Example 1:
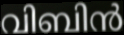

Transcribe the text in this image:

വിബിൻ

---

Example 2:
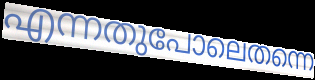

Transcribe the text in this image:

എന്നതുപോലെതന്നെ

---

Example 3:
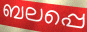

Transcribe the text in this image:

ബലപ്പെ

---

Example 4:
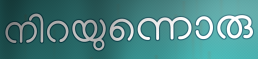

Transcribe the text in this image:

നിറയുന്നൊരു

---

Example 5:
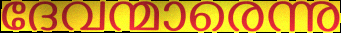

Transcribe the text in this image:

ദേവന്മാരെന്നു